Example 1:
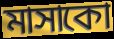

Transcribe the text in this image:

মাসাকো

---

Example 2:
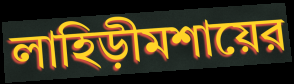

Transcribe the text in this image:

লাহিড়ীমশায়ের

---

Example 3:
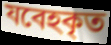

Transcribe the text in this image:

যবেহকৃত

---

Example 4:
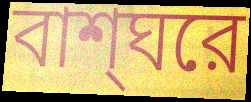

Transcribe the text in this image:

বাশ্ঘরে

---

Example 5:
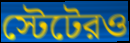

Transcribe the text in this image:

স্টেটেরও